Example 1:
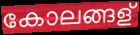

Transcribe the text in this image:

കോലങ്ങള്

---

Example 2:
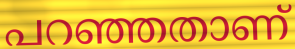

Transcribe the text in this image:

പറഞ്ഞതാണ്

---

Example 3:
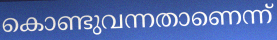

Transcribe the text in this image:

കൊണ്ടുവന്നതാണെന്ന്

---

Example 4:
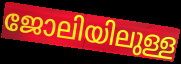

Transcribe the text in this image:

ജോലിയിലുള്ള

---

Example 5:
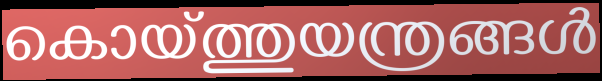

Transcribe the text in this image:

കൊയ്ത്തുയന്ത്രങ്ങൾ